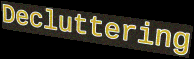
Decluttering